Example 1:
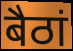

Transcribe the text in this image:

बैठां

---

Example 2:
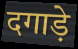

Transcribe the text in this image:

दगाड़े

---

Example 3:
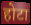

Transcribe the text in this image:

होटा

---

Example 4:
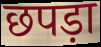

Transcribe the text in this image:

छपड़ा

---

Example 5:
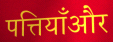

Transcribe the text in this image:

पत्तियाँऔर